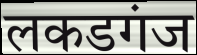
लकडगंज